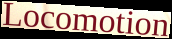
Locomotion